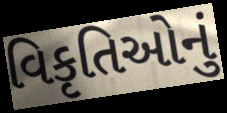
વિકૃતિઓનું